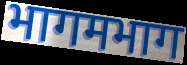
भागमभाग